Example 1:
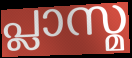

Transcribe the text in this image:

പ്ലാസ്മ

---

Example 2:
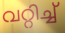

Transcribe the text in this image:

വറ്റിച്ച്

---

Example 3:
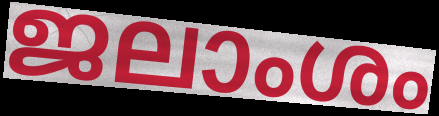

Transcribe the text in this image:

ജലാംശം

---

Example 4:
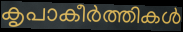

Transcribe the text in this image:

കൃപാകീർത്തികൾ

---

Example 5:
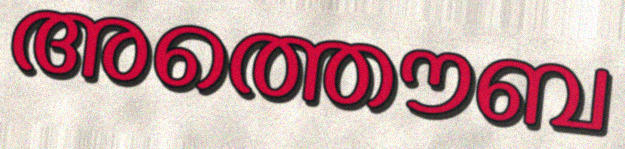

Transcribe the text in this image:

അത്തൌബ